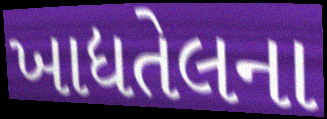
ખાદ્યતેલના